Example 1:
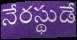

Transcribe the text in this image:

నేరస్థుడే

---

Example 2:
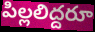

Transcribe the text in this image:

పిల్లలిద్దరూ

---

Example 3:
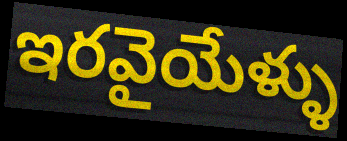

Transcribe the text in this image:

ఇరవైయేళ్ళు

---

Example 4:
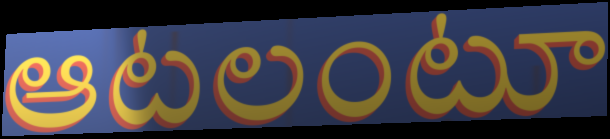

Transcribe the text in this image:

ఆటలంటూ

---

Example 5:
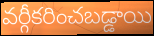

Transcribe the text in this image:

వర్గీకరించబడ్డాయి